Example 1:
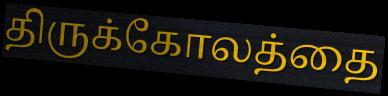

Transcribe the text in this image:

திருக்கோலத்தை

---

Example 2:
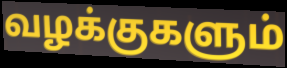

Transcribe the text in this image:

வழக்குகளும்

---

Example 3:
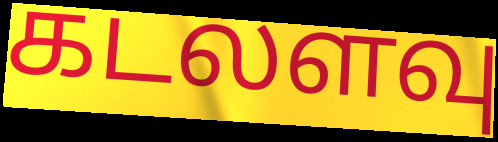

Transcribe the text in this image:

கடலளவு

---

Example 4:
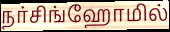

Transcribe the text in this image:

நர்சிங்ஹோமில்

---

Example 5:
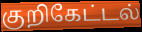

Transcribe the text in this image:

குறிகேட்டல்